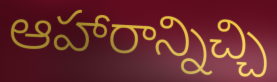
ఆహారాన్నిచ్చి